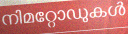
നിമറ്റോഡുകൾ